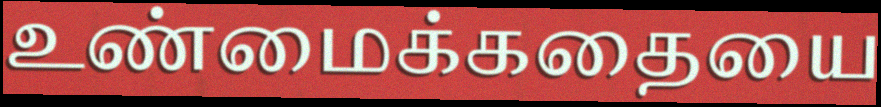
உண்மைக்கதையை